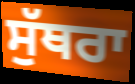
ਸੁੱਥਰਾ